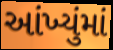
આંખ્યુંમાં